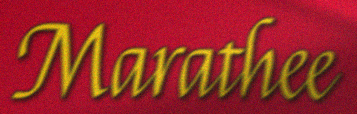
Marathee